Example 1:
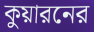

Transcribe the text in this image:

কুয়ারনের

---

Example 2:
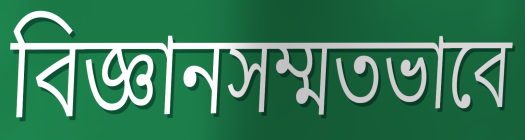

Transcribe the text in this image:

বিজ্ঞানসম্মতভাবে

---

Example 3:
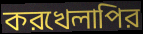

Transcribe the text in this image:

করখেলাপির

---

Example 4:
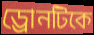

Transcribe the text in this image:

ড্রোনটিকে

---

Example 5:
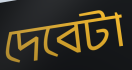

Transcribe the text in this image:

দেবেটা